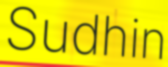
Sudhin